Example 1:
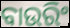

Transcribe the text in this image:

ବାଉରିଂ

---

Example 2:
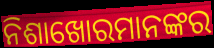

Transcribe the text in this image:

ନିଶାଖୋରମାନଙ୍କର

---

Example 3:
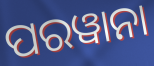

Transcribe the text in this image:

ପରୱାନା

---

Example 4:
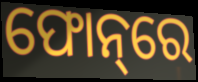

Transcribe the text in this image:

ଫୋନ୍‌ରେ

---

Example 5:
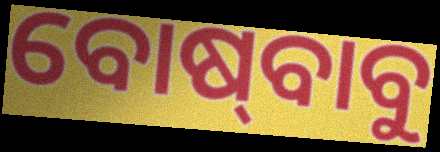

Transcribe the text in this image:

ବୋଷ୍‍ବାବୁ